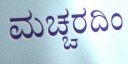
ಮಚ್ಚರದಿಂ